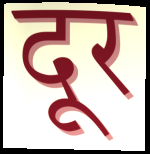
दूर